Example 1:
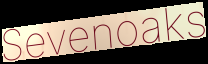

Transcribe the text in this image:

Sevenoaks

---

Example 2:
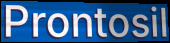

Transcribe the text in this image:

Prontosil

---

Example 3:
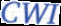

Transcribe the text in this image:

CWI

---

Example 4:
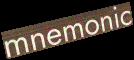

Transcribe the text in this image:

mnemonic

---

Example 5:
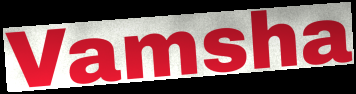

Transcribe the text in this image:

Vamsha